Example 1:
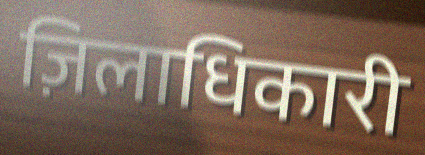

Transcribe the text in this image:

ज़िलाधिकारी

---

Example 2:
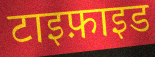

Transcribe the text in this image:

टाइफ़ाइड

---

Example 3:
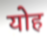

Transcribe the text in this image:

योह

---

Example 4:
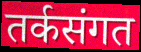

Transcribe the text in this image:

तर्कसंगत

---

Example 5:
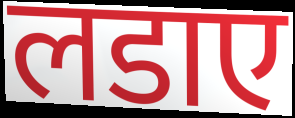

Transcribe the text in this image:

लडाए